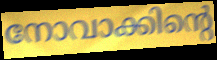
നോവാക്കിന്റെ